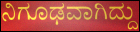
ನಿಗೂಢವಾಗಿದ್ದು